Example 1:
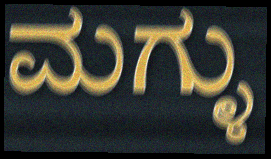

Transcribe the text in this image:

ಮಗ್ಳು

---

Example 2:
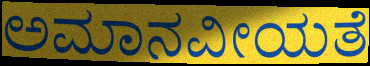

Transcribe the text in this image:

ಅಮಾನವೀಯತೆ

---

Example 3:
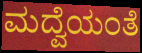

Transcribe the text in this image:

ಮದ್ವೆಯಂತೆ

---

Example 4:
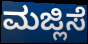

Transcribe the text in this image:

ಮಜ್ಲಿಸೆ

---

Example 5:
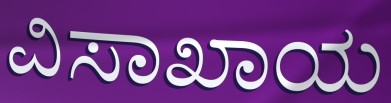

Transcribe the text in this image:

ವಿಸಾಖಾಯ